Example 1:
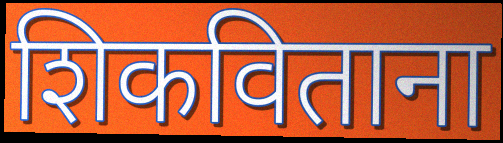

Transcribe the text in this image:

शिकविताना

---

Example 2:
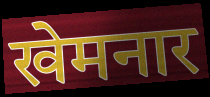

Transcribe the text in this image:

खेमनार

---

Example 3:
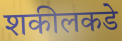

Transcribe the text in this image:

शकीलकडे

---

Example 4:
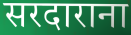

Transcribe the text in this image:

सरदाराना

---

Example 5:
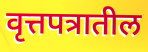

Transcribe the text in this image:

वृत्तपत्रातील